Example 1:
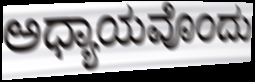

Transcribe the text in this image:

ಅಧ್ಯಾಯವೊಂದು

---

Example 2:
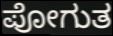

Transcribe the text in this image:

ಪೋಗುತ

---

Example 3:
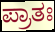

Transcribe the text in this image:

ಪ್ರಾತಃ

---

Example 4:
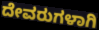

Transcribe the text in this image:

ದೇವರುಗಳಾಗಿ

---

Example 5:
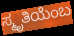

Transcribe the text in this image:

ಸ್ಮೃತಿಯೆಂಬ